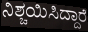
ನಿಶ್ಚಯಿಸಿದ್ದಾರೆ